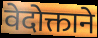
वेदोक्ताने